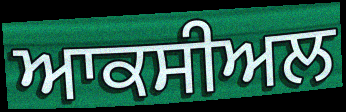
ਆਕਸੀਅਲ